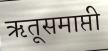
ऋतूसमाप्ती